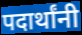
पदार्थांनी